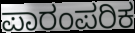
ಪಾರಂಪರಿಕ